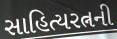
સાહિત્યરત્નની